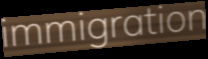
immigration